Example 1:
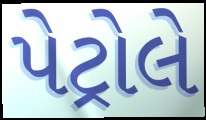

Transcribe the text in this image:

પેટ્રોલે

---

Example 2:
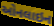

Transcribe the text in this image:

ઓનલાઇન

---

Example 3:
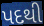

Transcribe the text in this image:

પદથી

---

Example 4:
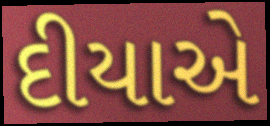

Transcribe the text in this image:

દીયાએ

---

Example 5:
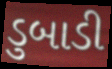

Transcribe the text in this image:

ડુબાડી